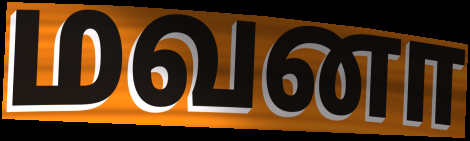
மவனா